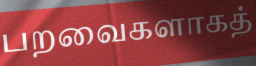
பறவைகளாகத்